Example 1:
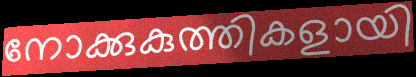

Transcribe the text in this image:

നോക്കുകുത്തികളായി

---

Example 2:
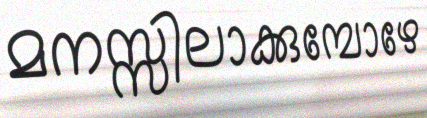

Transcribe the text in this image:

മനസ്സിലാക്കുമ്പോഴേ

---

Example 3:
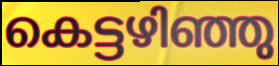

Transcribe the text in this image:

കെട്ടഴിഞ്ഞു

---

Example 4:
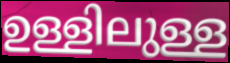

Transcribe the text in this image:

ഉള്ളിലുള്ള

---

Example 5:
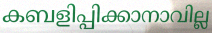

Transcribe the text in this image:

കബളിപ്പിക്കാനാവില്ല